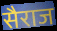
सैराज